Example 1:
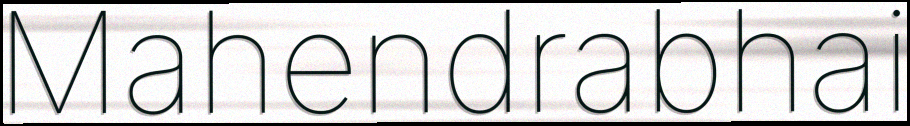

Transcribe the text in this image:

Mahendrabhai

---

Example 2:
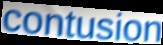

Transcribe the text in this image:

contusion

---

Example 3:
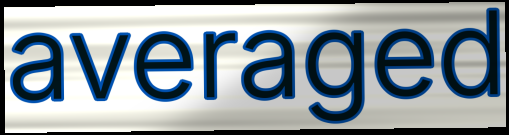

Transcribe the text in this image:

averaged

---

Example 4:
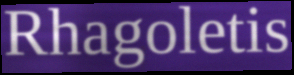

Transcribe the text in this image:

Rhagoletis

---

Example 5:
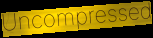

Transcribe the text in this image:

Uncompressed